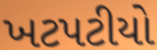
ખટપટીયો